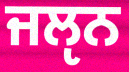
ਜਲੵਨ